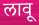
लावू